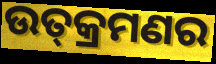
ଉତ୍‍କ୍ରମଣର